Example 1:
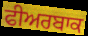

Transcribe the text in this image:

ਫੀਅਰਬਾਕ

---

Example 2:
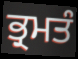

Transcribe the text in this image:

ਭ੍ਰਮਤੰ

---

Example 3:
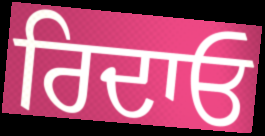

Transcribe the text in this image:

ਰਿਦਾਓ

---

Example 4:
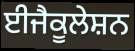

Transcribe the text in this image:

ਈਜੈਕੂਲੇਸ਼ਨ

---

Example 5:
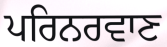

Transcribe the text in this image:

ਪਰਿਨਰਵਾਣ